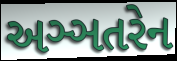
અઞ્ઞતરેન